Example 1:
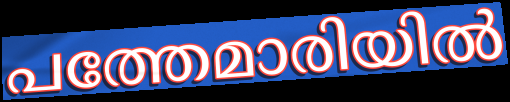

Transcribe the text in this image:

പത്തേമാരിയിൽ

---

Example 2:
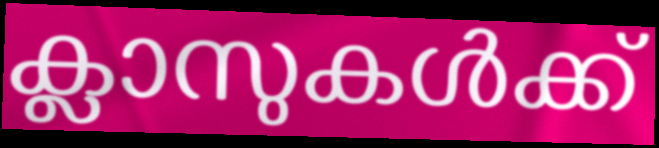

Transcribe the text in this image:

ക്ലാസുകൾക്ക്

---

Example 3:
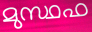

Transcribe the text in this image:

മുസ്ഥഫ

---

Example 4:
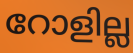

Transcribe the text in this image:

റോളില്ല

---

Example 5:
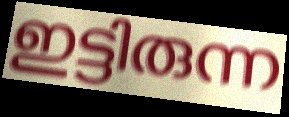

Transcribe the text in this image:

ഇട്ടിരുന്ന